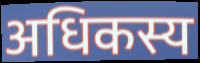
अधिकस्य